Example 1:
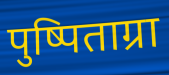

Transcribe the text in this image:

पुष्पिताग्रा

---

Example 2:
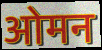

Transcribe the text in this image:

ओमन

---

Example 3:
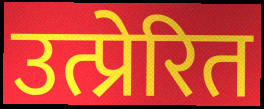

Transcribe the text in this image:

उत्प्रेरित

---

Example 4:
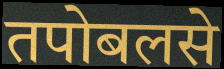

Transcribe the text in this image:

तपोबलसे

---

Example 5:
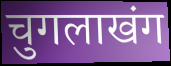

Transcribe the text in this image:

चुगलाखंग